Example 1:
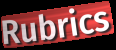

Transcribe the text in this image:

Rubrics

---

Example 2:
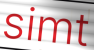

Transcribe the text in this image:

simt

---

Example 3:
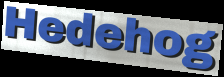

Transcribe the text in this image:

Hedehog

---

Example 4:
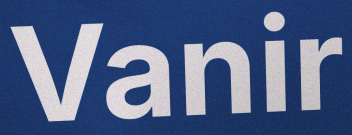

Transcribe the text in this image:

Vanir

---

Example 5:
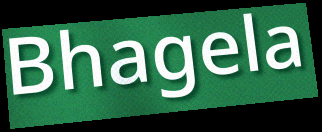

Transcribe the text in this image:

Bhagela